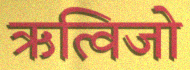
ऋत्विजो